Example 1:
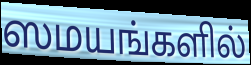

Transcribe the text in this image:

ஸமயங்களில்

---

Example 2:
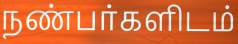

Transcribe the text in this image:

நண்பர்களிடம்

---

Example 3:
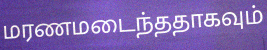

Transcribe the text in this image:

மரணமடைந்ததாகவும்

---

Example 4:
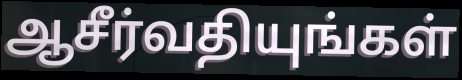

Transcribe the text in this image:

ஆசீர்வதியுங்கள்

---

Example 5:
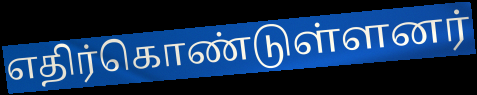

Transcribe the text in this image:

எதிர்கொண்டுள்ளனர்